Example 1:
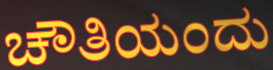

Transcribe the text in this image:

ಚೌತಿಯಂದು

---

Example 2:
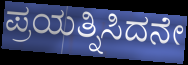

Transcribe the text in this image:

ಪ್ರಯತ್ನಿಸಿದನೇ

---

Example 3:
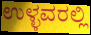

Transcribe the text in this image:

ಉಳ್ಳವರಲ್ಲಿ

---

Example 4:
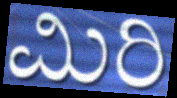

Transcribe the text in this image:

ಮಿರಿ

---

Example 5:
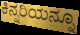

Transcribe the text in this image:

ಕಿನ್ನರಿಯನ್ನೂ